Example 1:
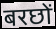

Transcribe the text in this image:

बरछों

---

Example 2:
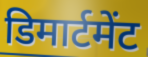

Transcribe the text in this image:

डिमार्टमेंट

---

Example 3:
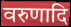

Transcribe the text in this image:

वरुणादि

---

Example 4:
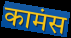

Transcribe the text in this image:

कामंस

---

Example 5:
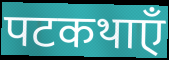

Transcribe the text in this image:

पटकथाएँ